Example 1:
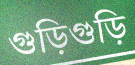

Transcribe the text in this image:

গুড়িগুড়ি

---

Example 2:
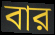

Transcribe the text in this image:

বার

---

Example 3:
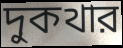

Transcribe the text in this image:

দুকথার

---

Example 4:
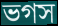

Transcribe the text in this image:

ভগস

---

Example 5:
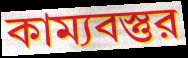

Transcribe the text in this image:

কাম্যবস্তুর